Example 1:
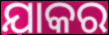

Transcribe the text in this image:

ଯାକର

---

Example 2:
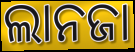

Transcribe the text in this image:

ଲାନଜା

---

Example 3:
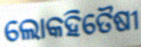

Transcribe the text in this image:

ଲୋକହିତୈଷୀ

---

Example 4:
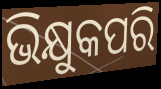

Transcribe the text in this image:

ଭିକ୍ଷୁକପରି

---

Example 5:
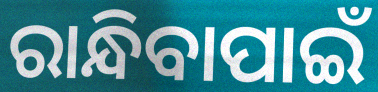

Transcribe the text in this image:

ରାନ୍ଧିବାପାଇଁ